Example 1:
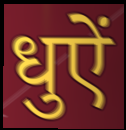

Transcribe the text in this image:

धुऐं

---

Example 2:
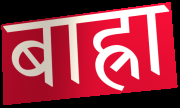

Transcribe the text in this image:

बाह्रा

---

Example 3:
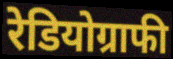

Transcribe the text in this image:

रेडियोग्राफी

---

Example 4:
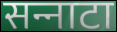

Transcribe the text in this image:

सन्‍नाटा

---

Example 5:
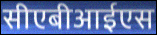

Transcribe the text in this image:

सीएबीआईएस